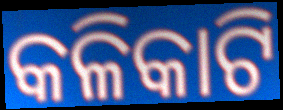
କଳିକାଟି